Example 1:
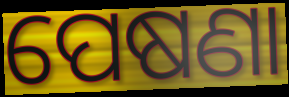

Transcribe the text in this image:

ପେଷଣା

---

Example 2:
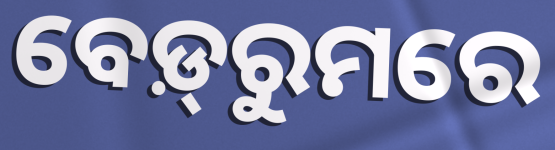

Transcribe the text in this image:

ବେଡ଼୍‌ରୁମରେ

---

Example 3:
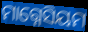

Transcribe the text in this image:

ମାଗ୍ନେସିୟମ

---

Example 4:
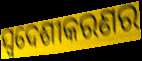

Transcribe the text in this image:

ସ୍ୱଦେଶୀକରଣର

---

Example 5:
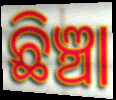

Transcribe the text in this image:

ଛିଞ୍ଚା